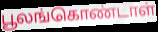
பூலங்கொண்டாள்